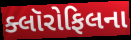
ક્લૉરોફિલના